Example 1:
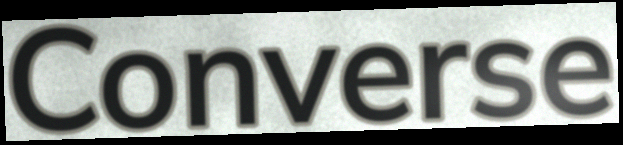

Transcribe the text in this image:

Converse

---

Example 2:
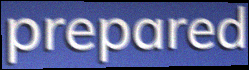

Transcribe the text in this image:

prepared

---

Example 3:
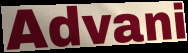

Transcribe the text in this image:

Advani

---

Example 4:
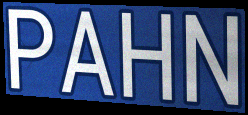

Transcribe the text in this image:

PAHN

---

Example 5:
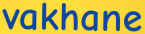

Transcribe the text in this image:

vakhane